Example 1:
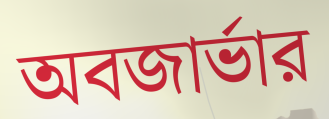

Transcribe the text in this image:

অবজার্ভার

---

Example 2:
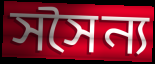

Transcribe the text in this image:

সসৈন্য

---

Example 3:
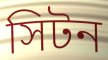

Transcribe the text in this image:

সিটন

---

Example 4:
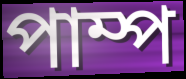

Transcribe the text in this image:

পাম্প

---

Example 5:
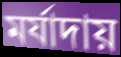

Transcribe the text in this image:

মর্যাদায়